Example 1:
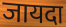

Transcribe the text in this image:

जायदा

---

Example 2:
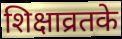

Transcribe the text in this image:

शिक्षाव्रतके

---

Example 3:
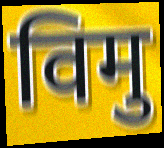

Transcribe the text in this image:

विमु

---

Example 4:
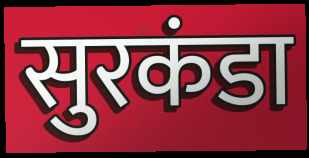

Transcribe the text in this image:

सुरकंडा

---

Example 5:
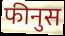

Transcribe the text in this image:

फीनुस